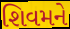
શિવમને